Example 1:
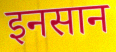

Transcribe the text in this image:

इनसान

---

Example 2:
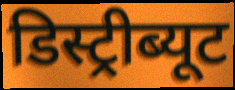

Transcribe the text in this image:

डिस्ट्रीब्यूट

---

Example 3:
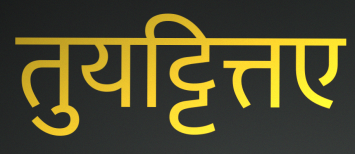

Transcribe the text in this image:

तुयट्टित्तए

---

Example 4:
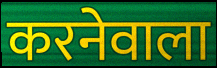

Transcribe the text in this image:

करनेवाला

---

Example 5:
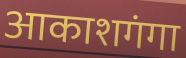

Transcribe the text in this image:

आकाशगंगा